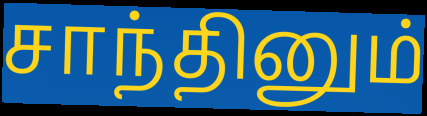
சாந்தினும்